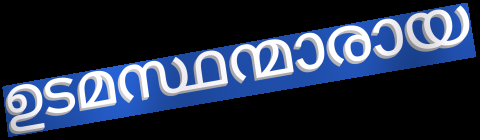
ഉടമസ്ഥന്മാരായ